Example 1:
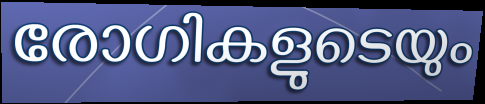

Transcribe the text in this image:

രോഗികളുടെയും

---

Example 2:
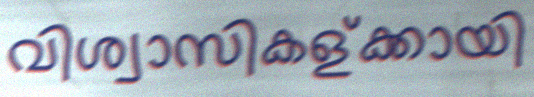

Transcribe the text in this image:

വിശ്വാസികള്ക്കായി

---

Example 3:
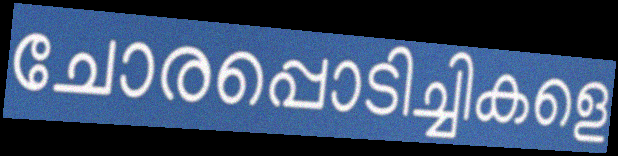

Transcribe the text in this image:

ചോരപ്പൊടിച്ചികളെ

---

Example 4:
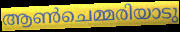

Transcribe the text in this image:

ആൺചെമ്മരിയാടു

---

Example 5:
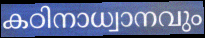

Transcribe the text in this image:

കഠിനാധ്വാനവും